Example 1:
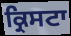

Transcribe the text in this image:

ਕ੍ਰਿਸਟਾ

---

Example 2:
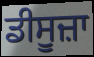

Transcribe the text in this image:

ਡੀਸੂਜ਼ਾ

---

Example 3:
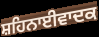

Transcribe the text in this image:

ਸ਼ਹਿਨਾਈਵਾਦਕ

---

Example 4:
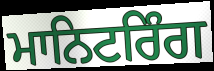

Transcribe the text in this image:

ਮਾਨਿਟਰਿੰਗ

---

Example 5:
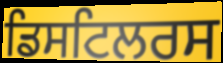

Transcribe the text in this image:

ਡਿਸਟਿਲਰਸ